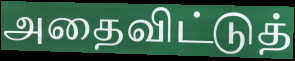
அதைவிட்டுத்